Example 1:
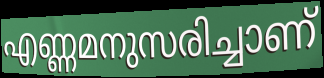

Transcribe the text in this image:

എണ്ണമനുസരിച്ചാണ്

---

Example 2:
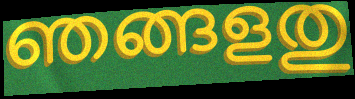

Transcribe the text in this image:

ഞങ്ങളതു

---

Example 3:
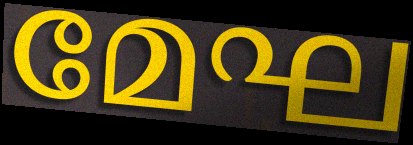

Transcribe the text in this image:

മേഘ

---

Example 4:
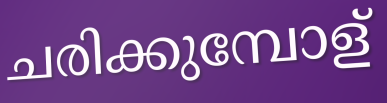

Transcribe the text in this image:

ചരിക്കുമ്പോള്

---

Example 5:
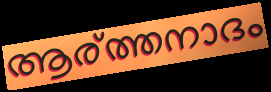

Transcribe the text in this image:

ആര്ത്തനാദം